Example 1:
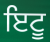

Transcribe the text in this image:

ਇਟੂ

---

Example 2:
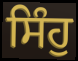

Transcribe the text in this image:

ਸਿੰਹੁ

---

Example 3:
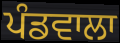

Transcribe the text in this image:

ਪੰਡਵਾਲਾ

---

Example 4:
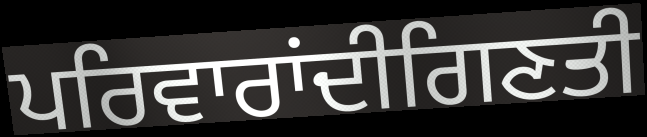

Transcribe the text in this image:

ਪਰਿਵਾਰਾਂਦੀਗਿਣਤੀ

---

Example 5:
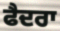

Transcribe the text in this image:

ਫੈਦਰਾ